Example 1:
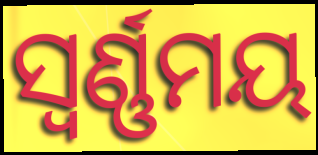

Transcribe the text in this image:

ସ୍ୱର୍ଣ୍ଣମୟ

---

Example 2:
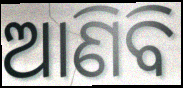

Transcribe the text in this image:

ଆଣିବି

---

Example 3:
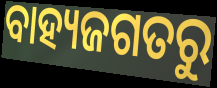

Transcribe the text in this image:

ବାହ୍ୟଜଗତରୁ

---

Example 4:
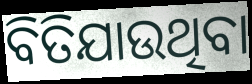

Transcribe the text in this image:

ବିତିଯାଉଥିବା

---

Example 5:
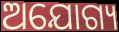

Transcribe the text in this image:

ଅଯୋଗ୍ୟ